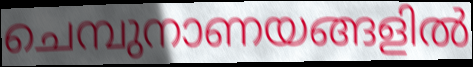
ചെമ്പുനാണയങ്ങളിൽ